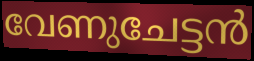
വേണുചേട്ടൻ